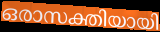
ഒരാസക്തിയായി